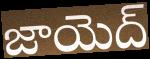
జాయెద్